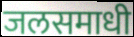
जलसमाधी